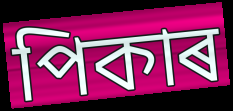
পিকাৰ